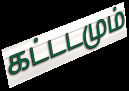
கட்டடமும்